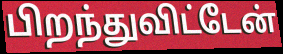
பிறந்துவிட்டேன்